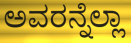
ಅವರನ್ನೆಲ್ಲಾ